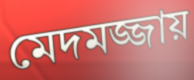
মেদমজ্জায়